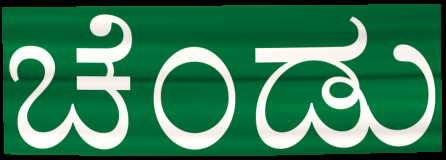
ಚೆಂಡು